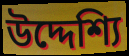
উদ্দেশ্যি